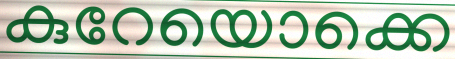
കുറേയൊക്കെ